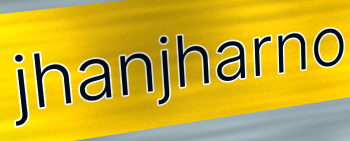
jhanjharno